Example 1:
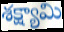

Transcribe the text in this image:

శక్ష్యామి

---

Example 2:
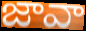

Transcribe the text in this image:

జావా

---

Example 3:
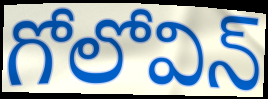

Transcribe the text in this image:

గోలోవిన్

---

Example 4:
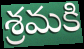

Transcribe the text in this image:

శ్రమకి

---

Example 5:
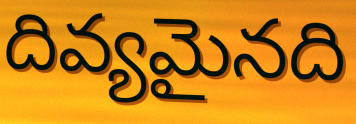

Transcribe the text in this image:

దివ్యమైనది